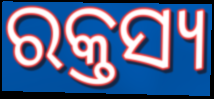
ରକ୍ତସ୍ୟ